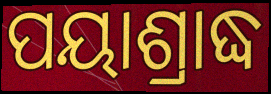
ପୟାଶ୍ରାଦ୍ଧ